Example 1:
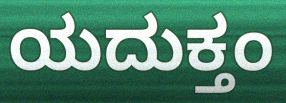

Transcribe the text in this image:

ಯದುಕ್ತಂ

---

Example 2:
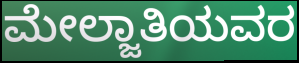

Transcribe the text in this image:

ಮೇಲ್ಜಾತಿಯವರ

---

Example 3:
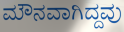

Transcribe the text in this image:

ಮೌನವಾಗಿದ್ದವು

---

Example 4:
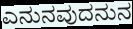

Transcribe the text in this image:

ಎನುನವುದನುನ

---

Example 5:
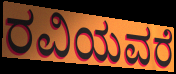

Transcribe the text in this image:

ರವಿಯವರೆ